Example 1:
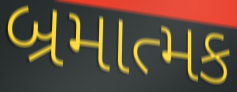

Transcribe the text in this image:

બ્રમાત્મક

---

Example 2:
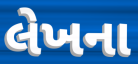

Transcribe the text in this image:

લેખના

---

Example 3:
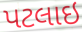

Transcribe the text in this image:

પટલાઇ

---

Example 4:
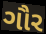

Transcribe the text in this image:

ગૌર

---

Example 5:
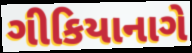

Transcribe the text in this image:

ગીકિયાનાગે